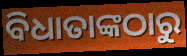
ବିଧାତାଙ୍କଠାରୁ